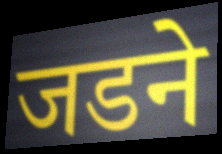
जडने